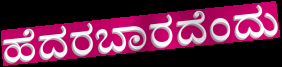
ಹೆದರಬಾರದೆಂದು